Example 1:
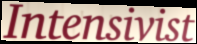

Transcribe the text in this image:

Intensivist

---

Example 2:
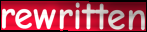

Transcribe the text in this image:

rewritten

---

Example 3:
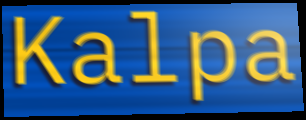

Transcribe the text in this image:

Kalpa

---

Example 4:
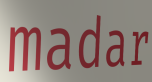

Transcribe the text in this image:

madar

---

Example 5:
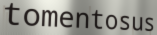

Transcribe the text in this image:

tomentosus